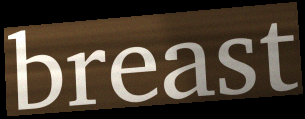
breast